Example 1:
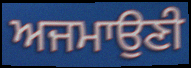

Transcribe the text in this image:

ਅਜਮਾਉਣੀ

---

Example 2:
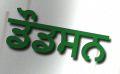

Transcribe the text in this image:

ਡੌਡਸਨ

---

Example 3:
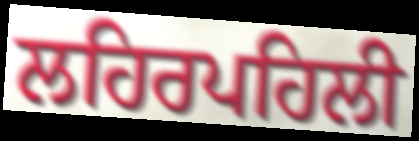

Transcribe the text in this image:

ਲਹਿਰਪਹਿਲੀ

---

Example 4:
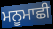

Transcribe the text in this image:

ਮਨੂਮਾਛੀ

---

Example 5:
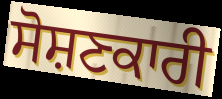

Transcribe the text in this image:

ਸੋਸ਼ਣਕਾਰੀ